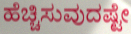
ಹೆಚ್ಚಿಸುವುದಷ್ಟೇ